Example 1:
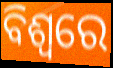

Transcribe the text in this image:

ବିଶ୍ଵରେ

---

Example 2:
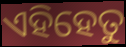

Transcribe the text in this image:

ଏହିହେତୁ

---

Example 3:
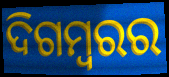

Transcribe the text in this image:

ଦିଗମ୍ୱରର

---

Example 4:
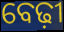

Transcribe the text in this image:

ବେଢ଼ୀ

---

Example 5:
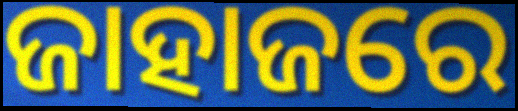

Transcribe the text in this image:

ଜାହାଜରେ